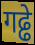
गढ्ढे